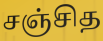
சஞ்சித